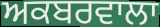
ਅਕਬਰਵਾਲਾ